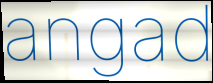
angad